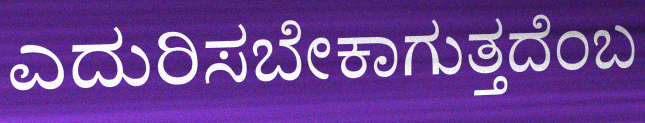
ಎದುರಿಸಬೇಕಾಗುತ್ತದೆಂಬ